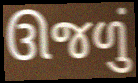
ઊજળું